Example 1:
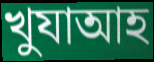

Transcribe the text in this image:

খুযাআহ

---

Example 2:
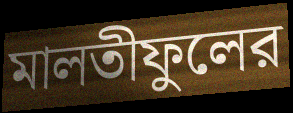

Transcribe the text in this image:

মালতীফুলের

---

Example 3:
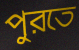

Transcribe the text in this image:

পুরতে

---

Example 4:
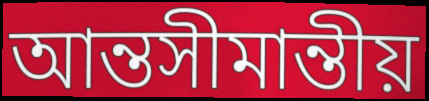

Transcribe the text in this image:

আন্তসীমান্তীয়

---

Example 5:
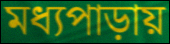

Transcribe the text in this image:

মধ্যপাড়ায়